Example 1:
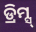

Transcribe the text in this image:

ଡ୍ରିମ୍ସ୍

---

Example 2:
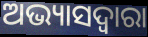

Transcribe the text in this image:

ଅଭ୍ୟାସଦ୍ୱାରା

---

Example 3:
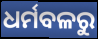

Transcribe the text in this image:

ଧର୍ମବଳରୁ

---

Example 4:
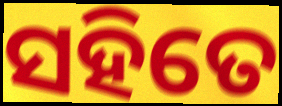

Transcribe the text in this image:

ସହିତେ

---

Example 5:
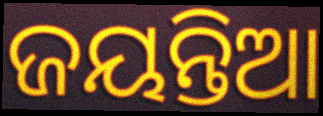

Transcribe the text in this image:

ଜୟନ୍ତିଆ